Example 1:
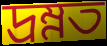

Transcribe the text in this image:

দ্রম্নত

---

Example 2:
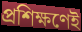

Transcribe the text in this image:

প্রশিক্ষণেই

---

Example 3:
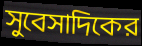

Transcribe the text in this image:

সুবেসাদিকের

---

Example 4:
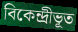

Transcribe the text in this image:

বিকেন্দ্রীভূত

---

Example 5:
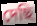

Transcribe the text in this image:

দেছি